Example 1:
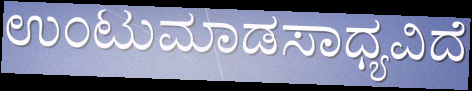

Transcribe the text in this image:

ಉಂಟುಮಾಡಸಾಧ್ಯವಿದೆ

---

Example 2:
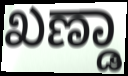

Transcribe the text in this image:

ಖಣ್ಡಾ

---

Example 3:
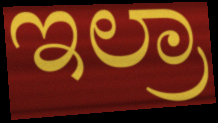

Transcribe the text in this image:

ಇಲ್ರಾ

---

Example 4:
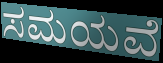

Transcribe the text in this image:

ಸಮಯವೆ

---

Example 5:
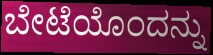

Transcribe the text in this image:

ಬೇಟೆಯೊಂದನ್ನು